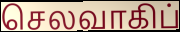
செலவாகிப்